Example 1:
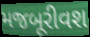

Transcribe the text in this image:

મજબૂરીવશ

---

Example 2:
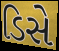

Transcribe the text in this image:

ડિસે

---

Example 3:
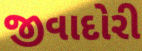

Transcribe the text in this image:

જીવાદોરી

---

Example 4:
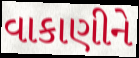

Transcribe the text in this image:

વાકાણીને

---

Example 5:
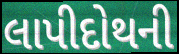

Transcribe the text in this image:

લાપીદોથની